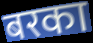
बरका